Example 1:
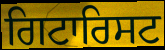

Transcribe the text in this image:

ਗਿਟਾਰਿਸਟ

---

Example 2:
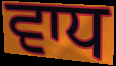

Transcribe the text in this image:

ਵਾਧ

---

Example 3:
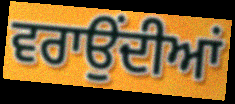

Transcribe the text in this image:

ਵਰਾਉਂਦੀਆਂ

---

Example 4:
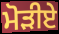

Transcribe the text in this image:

ਮੋੜੀਏ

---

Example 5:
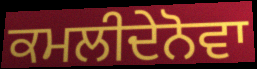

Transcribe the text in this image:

ਕਮਲੀਦੇਨੋਵਾ